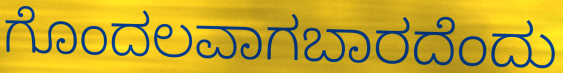
ಗೊಂದಲವಾಗಬಾರದೆಂದು